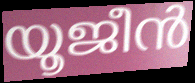
യൂജീൻ